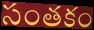
సంతకం